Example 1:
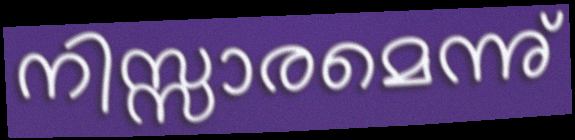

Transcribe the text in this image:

നിസ്സാരമെന്നു്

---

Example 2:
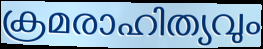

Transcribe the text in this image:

ക്രമരാഹിത്യവും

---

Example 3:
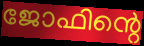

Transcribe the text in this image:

ജോഫിന്റെ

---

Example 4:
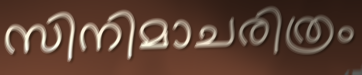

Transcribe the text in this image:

സിനിമാചരിത്രം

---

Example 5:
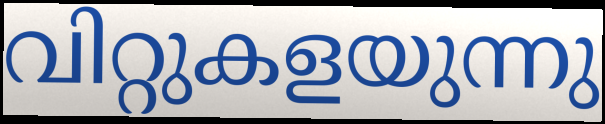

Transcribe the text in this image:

വിറ്റുകളയുന്നു